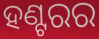
ହଣ୍ଟରର